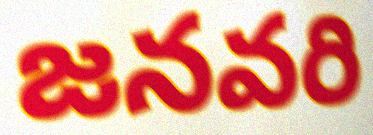
జనవరి